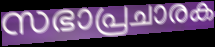
സഭാപ്രചാരക